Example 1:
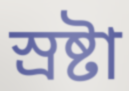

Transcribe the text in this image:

স্ৰষ্টা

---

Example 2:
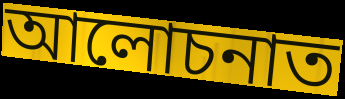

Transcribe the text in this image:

আলোচনাত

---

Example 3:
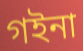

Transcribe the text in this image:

গইনা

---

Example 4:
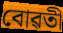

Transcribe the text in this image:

বোৱতী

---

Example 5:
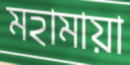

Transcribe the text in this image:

মহামায়া